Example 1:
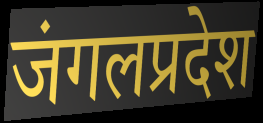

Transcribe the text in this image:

जंगलप्रदेश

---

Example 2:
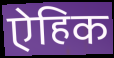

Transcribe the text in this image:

ऐहिक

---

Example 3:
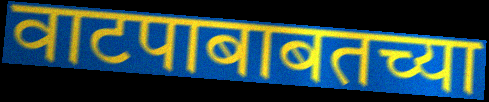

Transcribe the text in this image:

वाटपाबाबतच्या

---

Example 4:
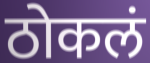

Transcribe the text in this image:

ठोकलं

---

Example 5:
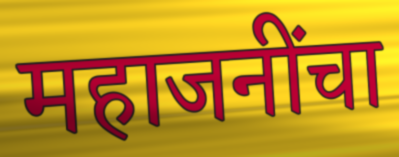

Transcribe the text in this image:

महाजनींचा